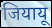
जियायू